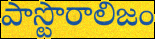
పాస్టొరాలిజం